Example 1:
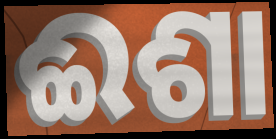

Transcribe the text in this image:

ଈଶା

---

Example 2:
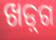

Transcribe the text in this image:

ଖଡ଼୍‌ଗ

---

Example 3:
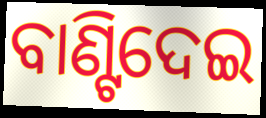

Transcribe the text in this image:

ବାଣ୍ଟିଦେଇ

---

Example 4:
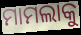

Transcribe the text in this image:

ମାମଲାକୁ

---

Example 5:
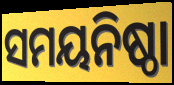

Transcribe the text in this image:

ସମୟନିଷ୍ଠା